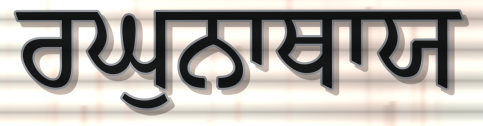
ਰਘੁਨਾਥਾਯ